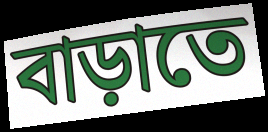
বাড়াতে